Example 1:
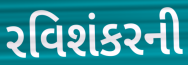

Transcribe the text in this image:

રવિશંકરની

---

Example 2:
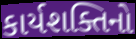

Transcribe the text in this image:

કાર્યશક્તિનો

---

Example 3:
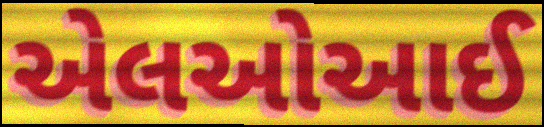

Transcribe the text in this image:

એલઓઆઈ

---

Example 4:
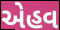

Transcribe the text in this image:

એહવ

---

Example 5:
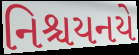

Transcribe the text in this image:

નિશ્ચયનયે